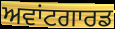
ਅਵਾਂਟਗਾਰਡ